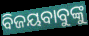
ବିଜୟବାବୁଙ୍କୁ